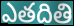
ఎతదితి